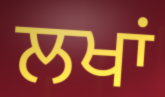
ਲਖਾਂ